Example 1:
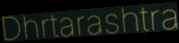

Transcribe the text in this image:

Dhrtarashtra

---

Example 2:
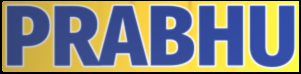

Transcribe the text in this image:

PRABHU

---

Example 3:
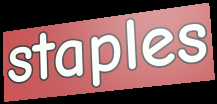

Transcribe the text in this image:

staples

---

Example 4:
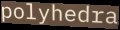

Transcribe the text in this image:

polyhedra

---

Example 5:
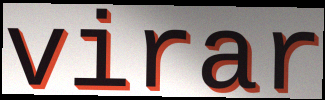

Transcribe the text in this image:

virar